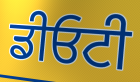
ਡੀਓਟੀ